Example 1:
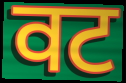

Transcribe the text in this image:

वट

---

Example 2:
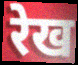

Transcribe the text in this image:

रेख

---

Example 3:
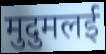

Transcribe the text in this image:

मुदुमलई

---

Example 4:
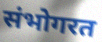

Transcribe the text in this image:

संभोगरत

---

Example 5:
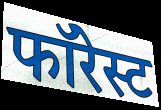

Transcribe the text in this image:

फॉरेस्ट